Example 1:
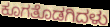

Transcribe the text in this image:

ಕೂಗತೊಡಗಿದಳು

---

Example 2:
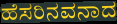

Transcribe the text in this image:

ಹೆಸರಿನವನಾದ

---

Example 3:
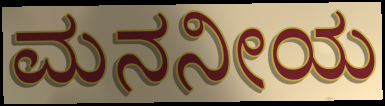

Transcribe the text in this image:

ಮನನೀಯ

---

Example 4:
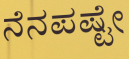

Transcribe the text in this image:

ನೆನಪಷ್ಟೇ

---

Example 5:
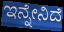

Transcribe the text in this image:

ಇನ್ನೇನಿದೆ